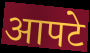
आपटे